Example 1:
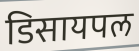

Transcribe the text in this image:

डिसायपल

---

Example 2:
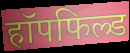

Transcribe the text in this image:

हॉपफिल्ड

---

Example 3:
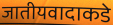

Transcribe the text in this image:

जातीयवादाकडे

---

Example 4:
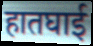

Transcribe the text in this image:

हातघाई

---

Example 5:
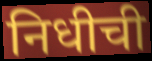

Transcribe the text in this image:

निधीची